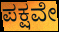
ಪಕ್ಷವೇ